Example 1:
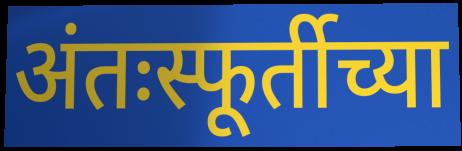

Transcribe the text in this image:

अंतःस्फूर्तीच्या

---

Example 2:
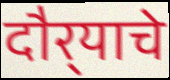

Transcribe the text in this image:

दौर्‍याचे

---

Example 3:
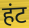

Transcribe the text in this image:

हंट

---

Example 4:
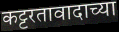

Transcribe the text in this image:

कट्टरतावादाच्या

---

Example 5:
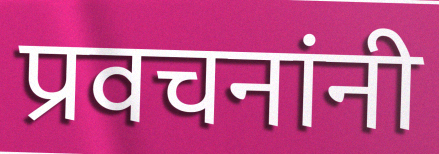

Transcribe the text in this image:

प्रवचनांनी